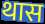
थास